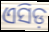
ଏସିଡ଼